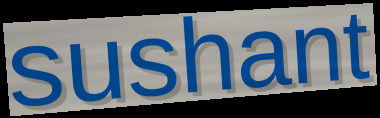
sushant